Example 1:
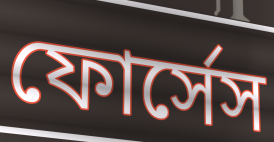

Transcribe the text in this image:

ফোর্সেস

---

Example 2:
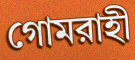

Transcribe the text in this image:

গোমরাহী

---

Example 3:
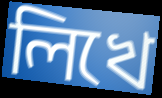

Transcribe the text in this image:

লিখে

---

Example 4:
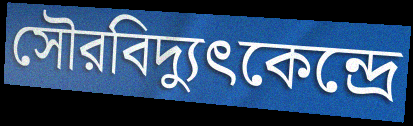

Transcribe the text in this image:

সৌরবিদ্যুৎকেন্দ্রে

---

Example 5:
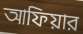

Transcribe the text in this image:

আফিয়ার